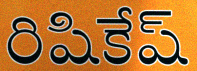
రిషికేష్